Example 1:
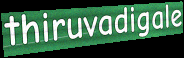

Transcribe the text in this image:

thiruvadigale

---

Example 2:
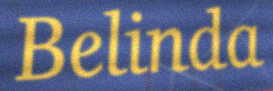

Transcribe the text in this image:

Belinda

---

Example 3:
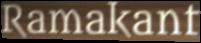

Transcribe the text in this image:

Ramakant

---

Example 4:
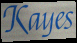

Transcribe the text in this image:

Kayes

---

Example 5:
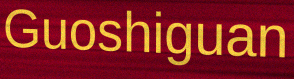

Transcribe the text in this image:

Guoshiguan